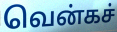
வென்கச்